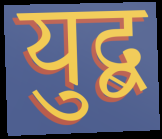
युद्ब